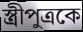
স্ত্রীপুত্রকে